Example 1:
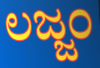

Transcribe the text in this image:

ಲಜ್ಜಂ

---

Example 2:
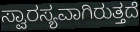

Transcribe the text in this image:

ಸ್ವಾರಸ್ಯವಾಗಿರುತ್ತದೆ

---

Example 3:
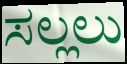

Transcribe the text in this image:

ಸಲ್ಲಲು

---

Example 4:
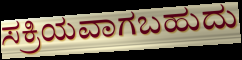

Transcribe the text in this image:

ಸಕ್ರಿಯವಾಗಬಹುದು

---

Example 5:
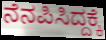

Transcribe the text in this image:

ನೆನಪಿಸಿದ್ದಕ್ಕೆ